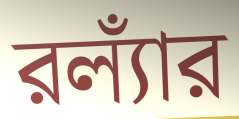
রল্যাঁর